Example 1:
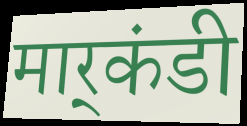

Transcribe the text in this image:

मार्कंडी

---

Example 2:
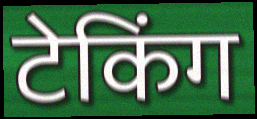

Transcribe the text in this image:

टेकिंग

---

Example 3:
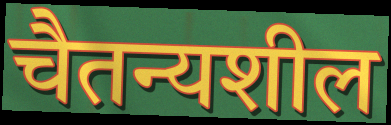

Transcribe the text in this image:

चैतन्यशील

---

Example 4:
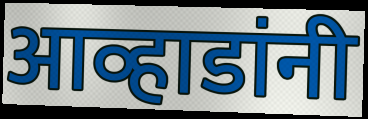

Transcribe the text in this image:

आव्हाडांनी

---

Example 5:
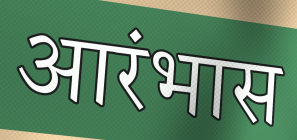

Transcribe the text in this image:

आरंभास